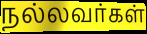
நல்லவர்கள்